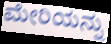
ಮೇರಿಯನ್ನು